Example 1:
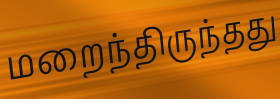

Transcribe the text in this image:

மறைந்திருந்தது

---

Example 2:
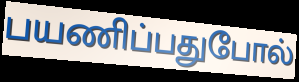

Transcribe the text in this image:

பயணிப்பதுபோல்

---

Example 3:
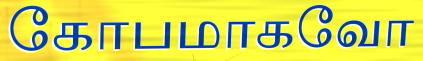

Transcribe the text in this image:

கோபமாகவோ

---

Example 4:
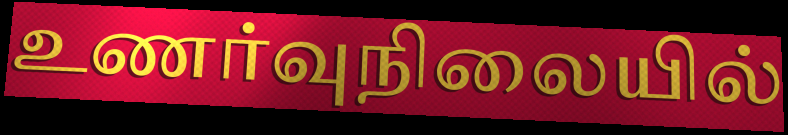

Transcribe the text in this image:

உணர்வுநிலையில்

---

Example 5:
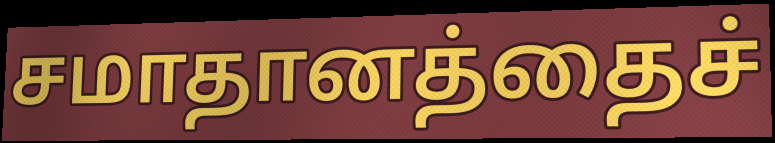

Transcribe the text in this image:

சமாதானத்தைச்